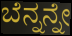
ಬೆನ್ನನ್ನೇ